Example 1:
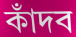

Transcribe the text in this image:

কাঁদব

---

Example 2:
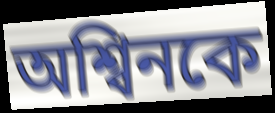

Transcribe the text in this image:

অশ্বিনকে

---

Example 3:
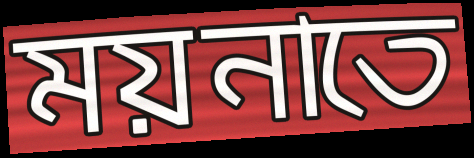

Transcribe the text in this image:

ময়নাতে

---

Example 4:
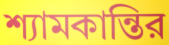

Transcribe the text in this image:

শ্যামকান্তির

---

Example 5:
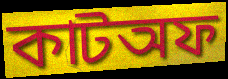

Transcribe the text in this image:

কাটঅফ